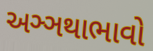
અઞ્ઞથાભાવો